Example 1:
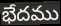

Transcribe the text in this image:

భేదము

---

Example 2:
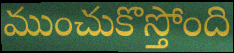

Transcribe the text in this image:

ముంచుకొస్తోంది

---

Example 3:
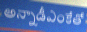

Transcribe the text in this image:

అన్నాడీఎంకేతో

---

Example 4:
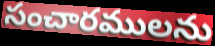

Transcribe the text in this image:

సంచారములను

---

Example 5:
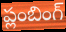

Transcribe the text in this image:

ప్లంబింగ్